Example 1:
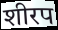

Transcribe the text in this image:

शीरप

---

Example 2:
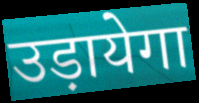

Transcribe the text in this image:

उड़ायेगा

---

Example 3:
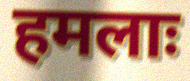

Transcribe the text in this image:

हमलाः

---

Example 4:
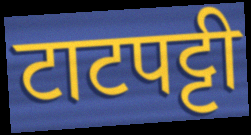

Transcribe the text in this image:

टाटपट्टी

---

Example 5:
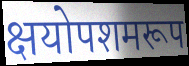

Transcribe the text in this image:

क्षयोपशमरूप